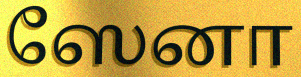
ஸேனா